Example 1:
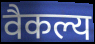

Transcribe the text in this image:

वैकल्य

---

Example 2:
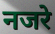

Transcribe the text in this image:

नजरे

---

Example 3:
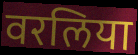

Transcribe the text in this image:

वरलिया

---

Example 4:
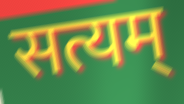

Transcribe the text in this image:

सत्यम्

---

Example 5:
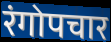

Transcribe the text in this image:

रंगोपचार